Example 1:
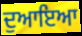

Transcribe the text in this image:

ਦੁਆਇਆ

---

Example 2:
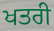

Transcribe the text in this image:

ਖਤਰੀ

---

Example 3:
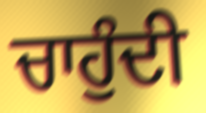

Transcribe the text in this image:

ਚਾਹੁੰਦੀ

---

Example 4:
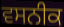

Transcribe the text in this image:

ਵਸਨੀਕ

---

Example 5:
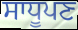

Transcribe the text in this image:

ਸਾਧੂਪਣ